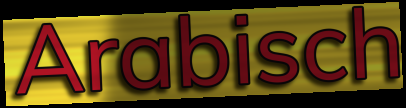
Arabisch